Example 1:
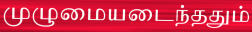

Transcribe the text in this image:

முழுமையடைந்ததும்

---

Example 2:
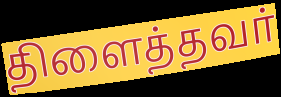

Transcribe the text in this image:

திளைத்தவர்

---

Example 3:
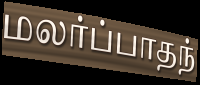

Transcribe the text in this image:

மலர்ப்பாதந்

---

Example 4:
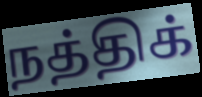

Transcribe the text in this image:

நத்திக்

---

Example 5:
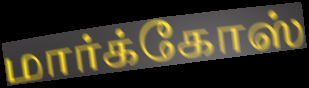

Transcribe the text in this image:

மார்க்கோஸ்